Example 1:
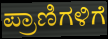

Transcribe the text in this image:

ಪ್ರಾಣಿಗಳಿಗೆ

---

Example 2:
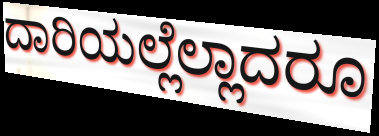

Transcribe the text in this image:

ದಾರಿಯಲ್ಲೆಲ್ಲಾದರೂ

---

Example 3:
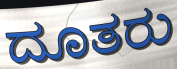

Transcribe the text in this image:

ದೂತರು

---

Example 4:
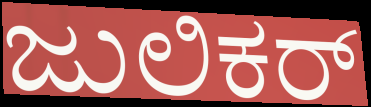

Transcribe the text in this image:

ಜುಲಿಕರ್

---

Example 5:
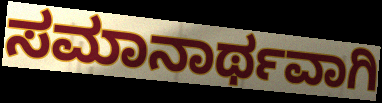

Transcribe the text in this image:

ಸಮಾನಾರ್ಥವಾಗಿ